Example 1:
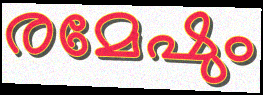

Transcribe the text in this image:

രമേഷും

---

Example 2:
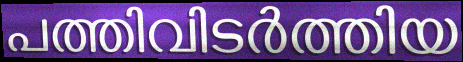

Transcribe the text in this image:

പത്തിവിടർത്തിയ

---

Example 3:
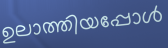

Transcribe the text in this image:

ഉലാത്തിയപ്പോൾ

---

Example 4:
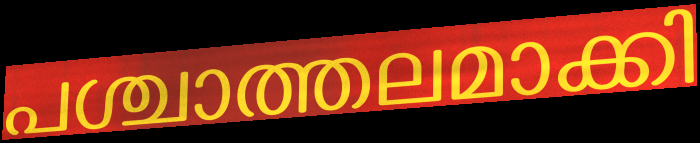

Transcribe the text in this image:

പശ്ചാത്തലമാക്കി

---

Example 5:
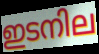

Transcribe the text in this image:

ഇടനില